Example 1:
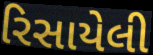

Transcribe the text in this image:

રિસાયેલી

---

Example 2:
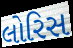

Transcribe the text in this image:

લોરિસ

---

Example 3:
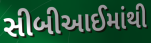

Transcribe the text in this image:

સીબીઆઈમાંથી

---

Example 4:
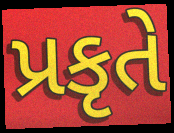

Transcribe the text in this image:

પ્રકૃતે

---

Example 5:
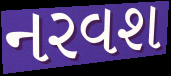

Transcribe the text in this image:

નરવશ